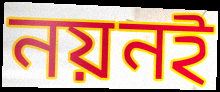
নয়নই